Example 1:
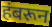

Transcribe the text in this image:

हंबरून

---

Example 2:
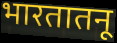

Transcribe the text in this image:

भारतातनू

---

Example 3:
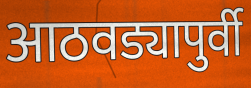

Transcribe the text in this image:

आठवड्यापुर्वी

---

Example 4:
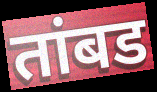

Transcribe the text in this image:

तांबड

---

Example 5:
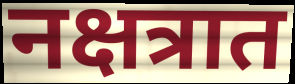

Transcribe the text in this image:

नक्षत्रात